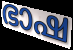
ഭാഷ